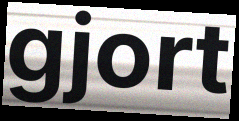
gjort